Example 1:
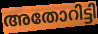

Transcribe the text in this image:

അതോറിട്ടി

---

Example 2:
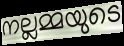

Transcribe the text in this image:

നല്ലമ്മയുടെ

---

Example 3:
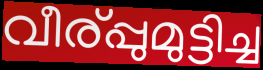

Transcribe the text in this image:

വീര്പ്പുമുട്ടിച്ച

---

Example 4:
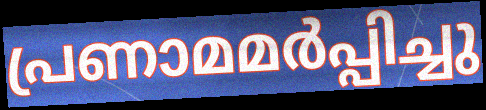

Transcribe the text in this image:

പ്രണാമമർപ്പിച്ചു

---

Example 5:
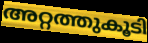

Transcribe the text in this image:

അറ്റത്തുകൂടി